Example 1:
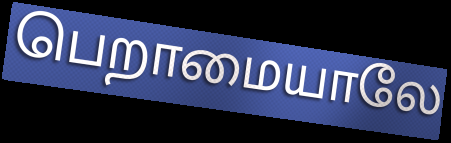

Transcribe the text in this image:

பெறாமையாலே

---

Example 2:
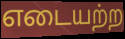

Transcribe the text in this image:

எடையற்ற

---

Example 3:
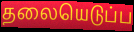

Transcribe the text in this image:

தலையெடுப்ப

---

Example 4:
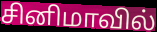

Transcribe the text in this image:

சினிமாவில்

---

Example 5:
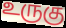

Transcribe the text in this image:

உருகு